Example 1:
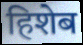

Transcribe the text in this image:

हिशेब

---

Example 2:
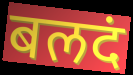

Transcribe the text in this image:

बलदं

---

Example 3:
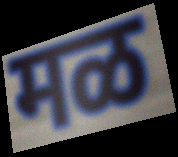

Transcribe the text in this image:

मळ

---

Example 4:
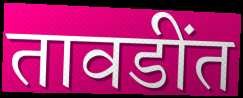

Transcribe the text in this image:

तावडींत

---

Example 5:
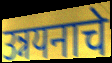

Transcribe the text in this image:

उन्नयनाचे